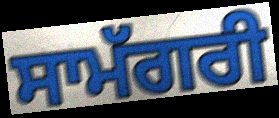
ਸਾਮੱਗਰੀ